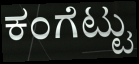
ಕಂಗೆಟ್ಟು